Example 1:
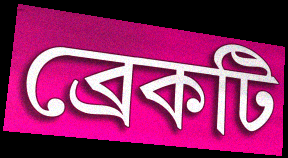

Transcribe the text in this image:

ব্রেকটি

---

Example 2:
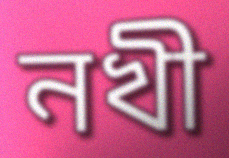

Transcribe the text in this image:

নখী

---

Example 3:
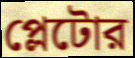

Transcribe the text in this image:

প্লেটোর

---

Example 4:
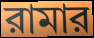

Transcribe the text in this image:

রামার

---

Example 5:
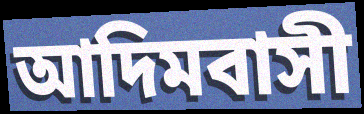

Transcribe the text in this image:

আদিমবাসী